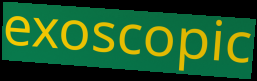
exoscopic